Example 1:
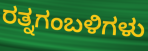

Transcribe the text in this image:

ರತ್ನಗಂಬಳಿಗಳು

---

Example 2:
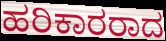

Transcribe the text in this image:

ಹರಿಕಾರರಾದ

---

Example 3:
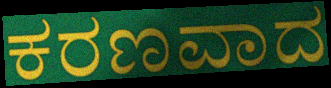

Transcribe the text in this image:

ಕರಣವಾದ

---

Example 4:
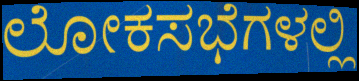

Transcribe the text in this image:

ಲೋಕಸಭೆಗಳಲ್ಲಿ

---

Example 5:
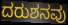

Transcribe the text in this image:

ದರುಶನವು